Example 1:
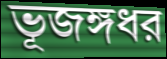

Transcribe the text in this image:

ভূজঙ্গধর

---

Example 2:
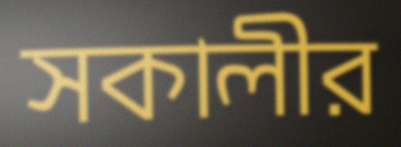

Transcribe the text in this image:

সকালীর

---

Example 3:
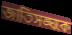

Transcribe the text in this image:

জাতিসঙ্ঘকে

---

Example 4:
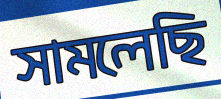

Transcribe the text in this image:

সামলেছি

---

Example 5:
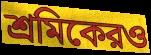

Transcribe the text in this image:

শ্রমিকেরও